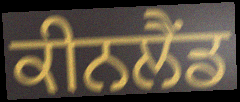
ਕੀਨਲੈਂਡ